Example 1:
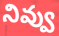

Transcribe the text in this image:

నివ్వు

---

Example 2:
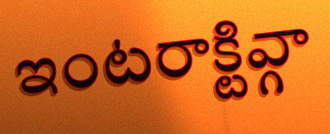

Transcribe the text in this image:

ఇంటరాక్టివ్గా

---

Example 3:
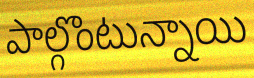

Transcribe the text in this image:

పాల్గొంటున్నాయి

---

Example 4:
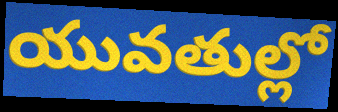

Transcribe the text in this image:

యువతుల్లో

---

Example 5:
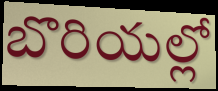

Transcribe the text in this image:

బొరియల్లో